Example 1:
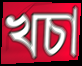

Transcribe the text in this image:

খচা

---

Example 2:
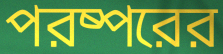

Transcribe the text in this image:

পরষ্পরের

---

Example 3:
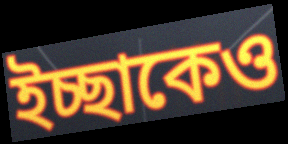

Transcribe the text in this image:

ইচ্ছাকেও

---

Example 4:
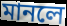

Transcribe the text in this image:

মানলে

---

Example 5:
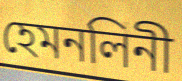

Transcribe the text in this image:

হেমনলিনী